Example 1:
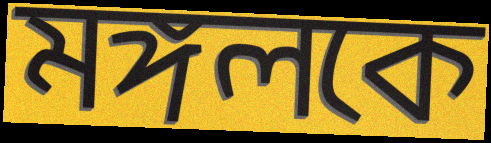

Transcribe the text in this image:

মঙ্গলকে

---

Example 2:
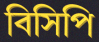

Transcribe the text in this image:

বিসিপি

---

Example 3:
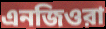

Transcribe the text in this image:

এনজিওরা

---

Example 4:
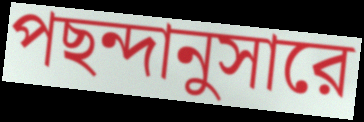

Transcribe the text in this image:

পছন্দানুসারে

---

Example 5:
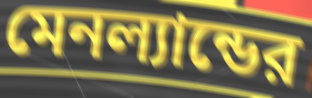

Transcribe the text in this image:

মেনল্যান্ডের